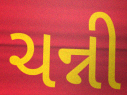
ચન્ની